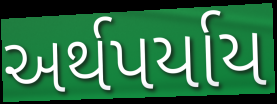
અર્થપર્યાય